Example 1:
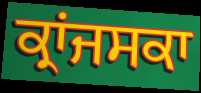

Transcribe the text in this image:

ਕ੍ਰਾਂਜਸਕਾ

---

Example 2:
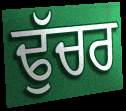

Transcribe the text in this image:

ਢੁੱਚਰ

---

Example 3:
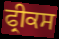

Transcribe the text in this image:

ਫ੍ਰੀਕਸ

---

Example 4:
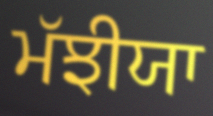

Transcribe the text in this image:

ਮੱਝੀਯਾ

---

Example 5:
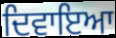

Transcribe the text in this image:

ਦਿਵਾਇਆ